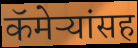
कॅमेऱ्यांसह